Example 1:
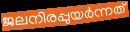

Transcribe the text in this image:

ജലനിരപ്പുയർന്നത്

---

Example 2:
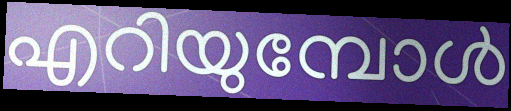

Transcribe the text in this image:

എറിയുമ്പോൾ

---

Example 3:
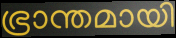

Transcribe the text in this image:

ഭ്രാന്തമായി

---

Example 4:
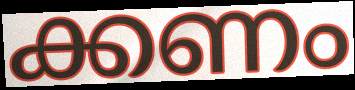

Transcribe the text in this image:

ക്കണം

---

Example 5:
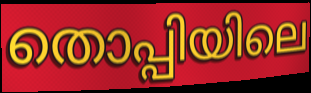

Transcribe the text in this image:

തൊപ്പിയിലെ